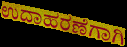
ಉದಾಹರಣೆಗಾಗಿ